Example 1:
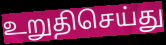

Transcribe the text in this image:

உறுதிசெய்து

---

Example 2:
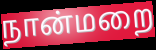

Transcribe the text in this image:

நான்மறை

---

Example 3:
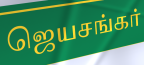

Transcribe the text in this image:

ஜெயசங்கர்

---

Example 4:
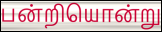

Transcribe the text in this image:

பன்றியொன்று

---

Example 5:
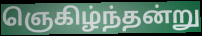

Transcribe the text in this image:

ஞெகிழ்ந்தன்று